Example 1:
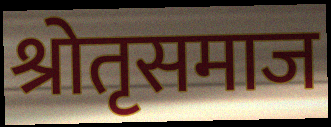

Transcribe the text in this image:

श्रोतृसमाज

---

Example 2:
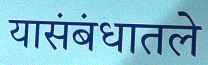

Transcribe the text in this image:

यासंबंधातले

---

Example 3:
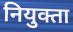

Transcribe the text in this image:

नियुक्ता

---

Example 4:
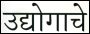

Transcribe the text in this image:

उद्योगाचे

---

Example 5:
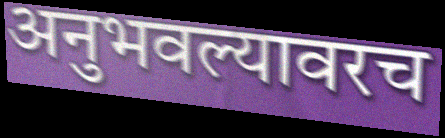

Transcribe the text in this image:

अनुभवल्यावरच